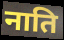
नाति